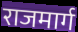
राजमार्ग